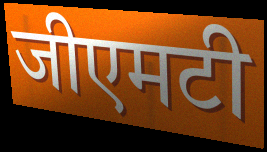
जीएमटी